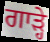
ਗਾੜ੍ਹੇ